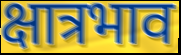
क्षात्रभाव